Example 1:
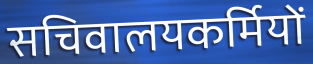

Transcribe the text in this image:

सचिवालयकर्मियों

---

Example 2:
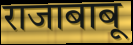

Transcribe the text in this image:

राजाबाबू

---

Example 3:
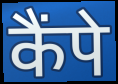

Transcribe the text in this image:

कैंपे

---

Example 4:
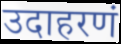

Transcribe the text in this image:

उदाहरणं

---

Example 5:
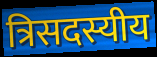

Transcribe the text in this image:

त्रिसदस्यीय